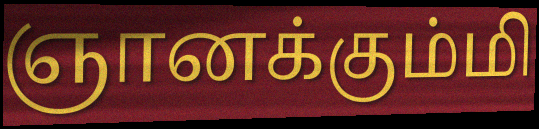
ஞானக்கும்மி